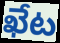
ఖేట